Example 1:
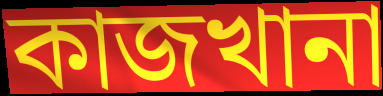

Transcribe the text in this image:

কাজখানা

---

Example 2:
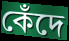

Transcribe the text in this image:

কেঁদে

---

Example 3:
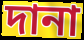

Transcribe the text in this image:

দানা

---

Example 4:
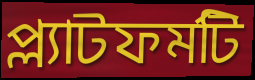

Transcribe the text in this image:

প্ল্যাটফর্মটি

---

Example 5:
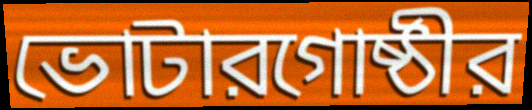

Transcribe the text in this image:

ভোটারগোষ্ঠীর